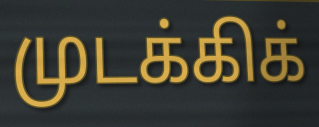
முடக்கிக்